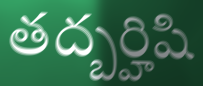
తద్బర్హిషి